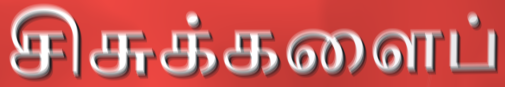
சிசுக்களைப்